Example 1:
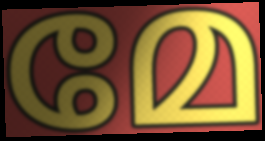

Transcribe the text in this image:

മേ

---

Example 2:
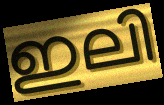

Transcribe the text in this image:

ഇലി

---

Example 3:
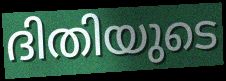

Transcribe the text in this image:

ദിതിയുടെ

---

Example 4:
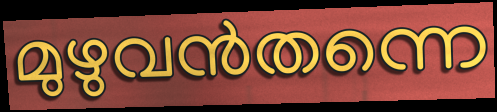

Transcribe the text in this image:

മുഴുവൻതന്നെ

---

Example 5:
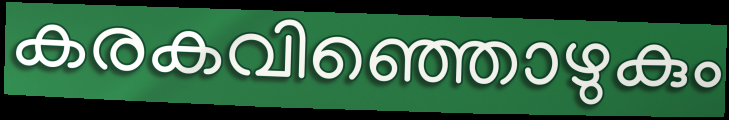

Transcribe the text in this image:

കരകവിഞ്ഞൊഴുകും